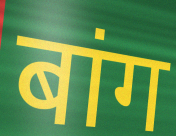
बांग